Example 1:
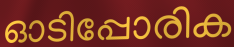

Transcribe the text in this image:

ഓടിപ്പോരിക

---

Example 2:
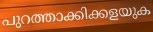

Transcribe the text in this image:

പുറത്താക്കിക്കളയുക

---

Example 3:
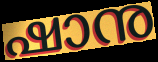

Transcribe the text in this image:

ഷാനു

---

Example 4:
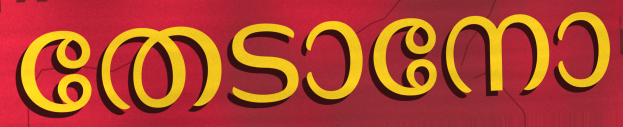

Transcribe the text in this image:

തേടാനോ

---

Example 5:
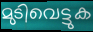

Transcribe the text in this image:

മുടിവെട്ടുക